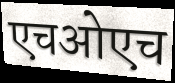
एचओएच